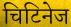
चिटिनेज